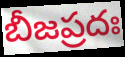
బీజప్రదః